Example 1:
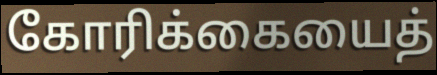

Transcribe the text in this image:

கோரிக்கையைத்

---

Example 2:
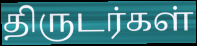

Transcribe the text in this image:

திருடர்கள்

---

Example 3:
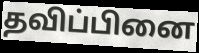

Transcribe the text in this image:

தவிப்பினை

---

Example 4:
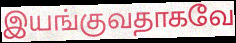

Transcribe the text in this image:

இயங்குவதாகவே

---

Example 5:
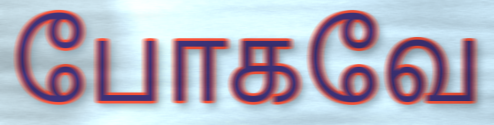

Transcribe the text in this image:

போகவே